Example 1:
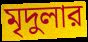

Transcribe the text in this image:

মৃদুলার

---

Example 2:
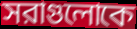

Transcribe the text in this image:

সরাগুলোকে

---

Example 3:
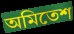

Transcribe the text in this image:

অমিতেশ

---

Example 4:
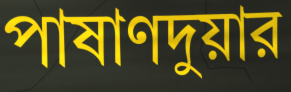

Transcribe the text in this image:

পাষাণদুয়ার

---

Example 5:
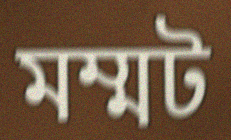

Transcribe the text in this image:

মম্মট